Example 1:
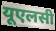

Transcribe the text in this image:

यूएलसी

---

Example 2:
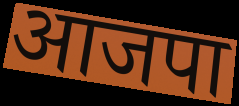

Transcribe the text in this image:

आजपा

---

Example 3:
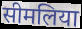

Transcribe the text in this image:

सीमलिया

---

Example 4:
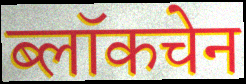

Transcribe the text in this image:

ब्लॉकचेन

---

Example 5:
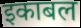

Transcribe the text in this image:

इकाबल